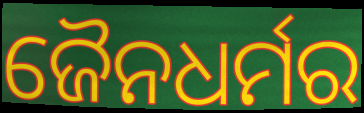
ଜୈନଧର୍ମର